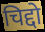
चिद्दो